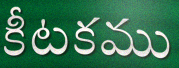
కీటకము